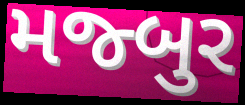
મજ્બુર